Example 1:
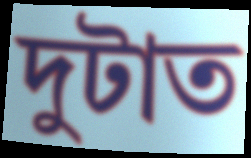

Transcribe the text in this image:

দুটাত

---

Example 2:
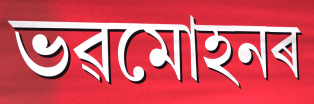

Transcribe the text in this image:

ভৱমোহনৰ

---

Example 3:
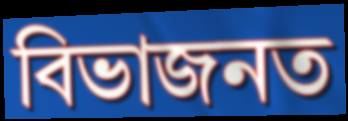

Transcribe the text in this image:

বিভাজনত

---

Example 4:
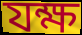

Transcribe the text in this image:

যক্ষ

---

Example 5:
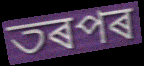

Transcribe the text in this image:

তৰপৰ